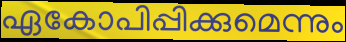
ഏകോപിപ്പിക്കുമെന്നും